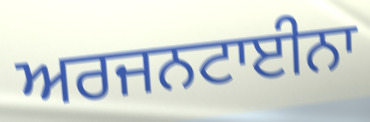
ਅਰਜਨਟਾਈਨਾ